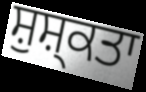
ਸ਼ੁਸ਼੍ਕਤਾ